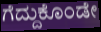
ಗೆದ್ದುಕೊಂಡೇ